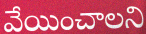
వేయించాలని